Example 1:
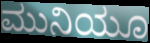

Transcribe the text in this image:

ಮುನಿಯೂ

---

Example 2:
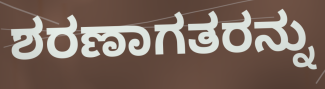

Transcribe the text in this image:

ಶರಣಾಗತರನ್ನು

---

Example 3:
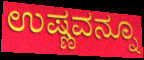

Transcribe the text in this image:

ಉಷ್ಣವನ್ನೂ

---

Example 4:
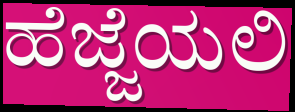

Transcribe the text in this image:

ಹೆಜ್ಜೆಯಲಿ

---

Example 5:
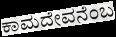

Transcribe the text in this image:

ಕಾಮದೇವನೆಂಬ